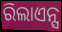
ରିଲାଏନ୍ସ